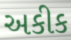
અકીક